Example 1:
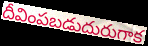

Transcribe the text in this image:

దీవింపబడుదురుగాక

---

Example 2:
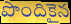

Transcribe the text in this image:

పొందికైన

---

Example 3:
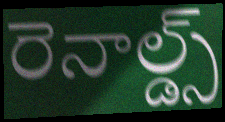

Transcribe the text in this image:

రెనాల్డ్స్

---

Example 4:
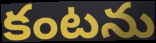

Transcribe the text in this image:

కంటను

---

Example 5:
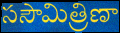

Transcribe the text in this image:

ససౌమిత్రిణా